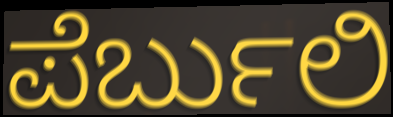
ಪೆರ್ಬುಲಿ